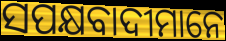
ସପକ୍ଷବାଦୀମାନେ